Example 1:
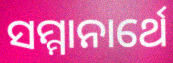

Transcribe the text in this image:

ସମ୍ମାନାର୍ଥେ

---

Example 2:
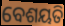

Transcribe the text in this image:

ବେଶୟତି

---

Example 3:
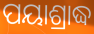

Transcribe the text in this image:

ପୟାଶ୍ରାଦ୍ଧ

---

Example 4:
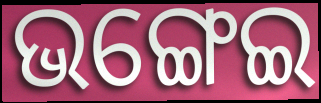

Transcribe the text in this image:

ଭଙ୍ଗେଇ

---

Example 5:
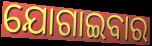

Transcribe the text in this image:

ଯୋଗାଇବାର